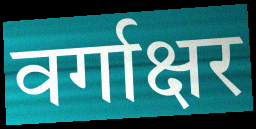
वर्गाक्षर